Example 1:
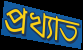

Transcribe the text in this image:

প্ৰখ্যাত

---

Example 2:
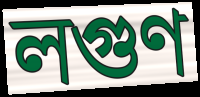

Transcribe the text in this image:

লগুণ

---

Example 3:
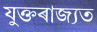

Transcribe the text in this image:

যুক্তৰাজ্যত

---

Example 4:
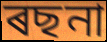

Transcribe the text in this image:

ৰছনা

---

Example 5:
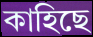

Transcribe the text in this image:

কাহিছে